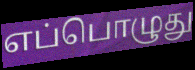
எப்பொழுது